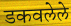
डकवलेले